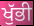
ਖੁੱਭੀ